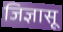
जिज्ञासू